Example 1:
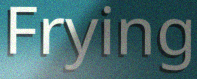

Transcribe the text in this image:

Frying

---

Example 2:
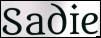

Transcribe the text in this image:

Sadie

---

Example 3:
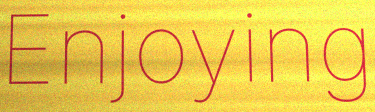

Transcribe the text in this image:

Enjoying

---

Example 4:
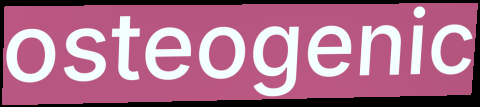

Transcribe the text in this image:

osteogenic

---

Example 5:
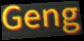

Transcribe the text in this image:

Geng